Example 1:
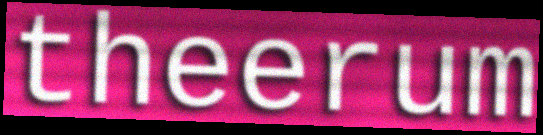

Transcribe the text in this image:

theerum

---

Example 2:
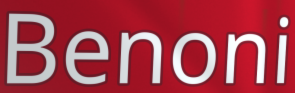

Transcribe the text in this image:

Benoni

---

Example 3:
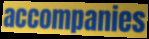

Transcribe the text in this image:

accompanies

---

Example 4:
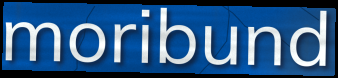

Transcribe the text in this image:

moribund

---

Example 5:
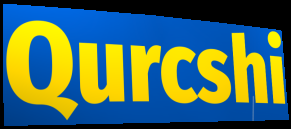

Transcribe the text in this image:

Qurcshi